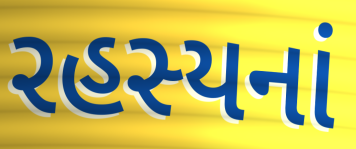
રહસ્યનાં